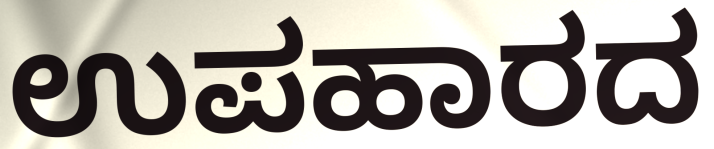
ಉಪಹಾರದ